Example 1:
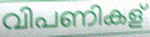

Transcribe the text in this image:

വിപണികള്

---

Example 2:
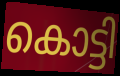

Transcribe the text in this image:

കൊട്ടി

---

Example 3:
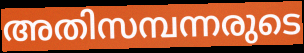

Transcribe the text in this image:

അതിസമ്പന്നരുടെ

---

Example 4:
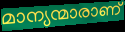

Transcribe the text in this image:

മാന്യന്മാരാണ്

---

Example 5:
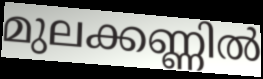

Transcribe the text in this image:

മുലക്കണ്ണിൽ